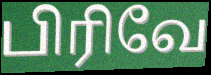
பிரிவே